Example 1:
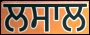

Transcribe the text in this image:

ਲਸਾਲ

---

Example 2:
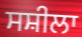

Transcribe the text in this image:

ਸਸ਼ੀਲਾ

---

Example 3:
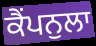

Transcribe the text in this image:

ਕੈਂਪਨੁਲਾ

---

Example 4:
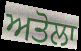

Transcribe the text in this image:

ਅਤੋਲਾ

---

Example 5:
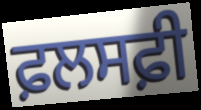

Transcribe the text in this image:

ਫ਼ਲਸਫ਼ੀ